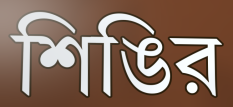
শিঙির